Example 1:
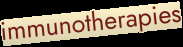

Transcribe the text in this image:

immunotherapies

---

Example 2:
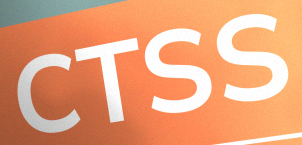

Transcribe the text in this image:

CTSS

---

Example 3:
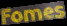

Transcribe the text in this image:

Fomes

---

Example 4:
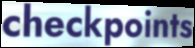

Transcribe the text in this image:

checkpoints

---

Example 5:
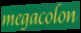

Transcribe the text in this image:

megacolon